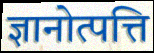
ज्ञानोत्पत्ति